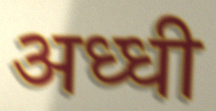
अध्धी